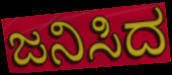
ಜನಿಸಿದ